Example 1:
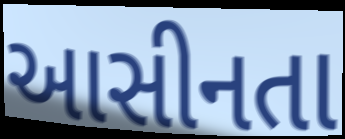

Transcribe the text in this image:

આસીનતા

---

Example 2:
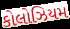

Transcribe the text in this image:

કોલોઝિયમ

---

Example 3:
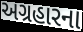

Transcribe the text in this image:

અગ્રહારના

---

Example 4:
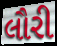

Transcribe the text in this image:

લૌરી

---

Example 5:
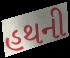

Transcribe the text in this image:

હથની